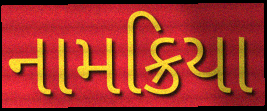
નામક્રિયા